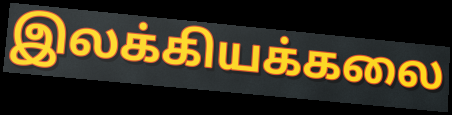
இலக்கியக்கலை